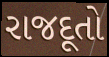
રાજદૂતો